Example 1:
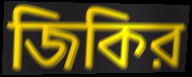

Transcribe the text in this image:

জিকির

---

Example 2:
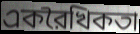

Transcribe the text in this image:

একরৈখিকতা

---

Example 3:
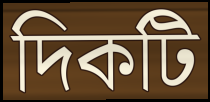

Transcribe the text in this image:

দিকটি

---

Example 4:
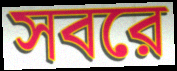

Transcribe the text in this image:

সবরে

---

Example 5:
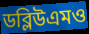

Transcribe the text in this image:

ডব্লিউএমও